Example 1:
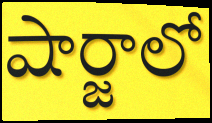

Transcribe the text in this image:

షార్జాలో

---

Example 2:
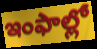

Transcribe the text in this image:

ఇంఫాల్లో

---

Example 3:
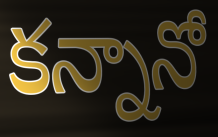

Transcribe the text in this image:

కన్నానో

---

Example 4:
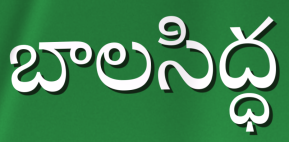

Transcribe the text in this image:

బాలసిద్ధ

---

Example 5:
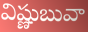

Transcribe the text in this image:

విష్ణుబువా